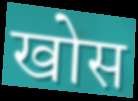
खोस